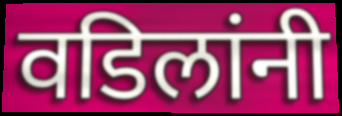
वडिलांनी